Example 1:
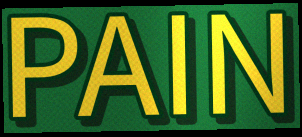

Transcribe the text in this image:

PAIN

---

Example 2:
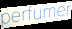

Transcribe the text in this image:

perfumer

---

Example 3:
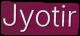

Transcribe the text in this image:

Jyotir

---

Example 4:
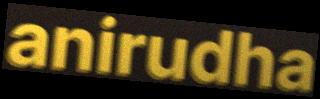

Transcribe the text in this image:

anirudha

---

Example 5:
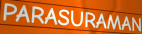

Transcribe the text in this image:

PARASURAMAN